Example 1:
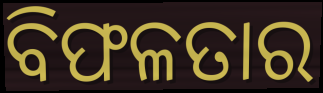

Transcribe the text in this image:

ବିଫଳତାର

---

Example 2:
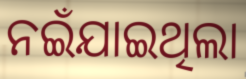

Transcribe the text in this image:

ନଇଁଯାଇଥିଲା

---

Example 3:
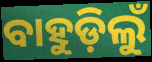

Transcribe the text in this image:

ବାହୁଡ଼ିଲୁଁ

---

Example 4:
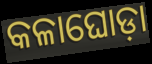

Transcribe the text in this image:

କଳାଘୋଡ଼ା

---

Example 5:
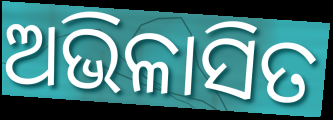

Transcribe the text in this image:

ଅଭିଳାସିତ